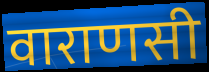
वाराणसी